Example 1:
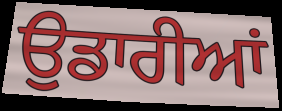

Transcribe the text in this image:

ਉੁਡਾਰੀਆਂ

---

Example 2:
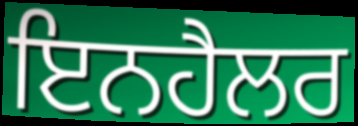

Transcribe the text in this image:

ਇਨਹੈਲਰ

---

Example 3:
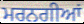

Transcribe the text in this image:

ਮਰਨਗੀਆਂ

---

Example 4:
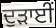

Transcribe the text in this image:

ਦੁੜਾਈਂ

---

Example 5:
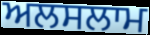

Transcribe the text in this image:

ਅਲਸਲਾਮ